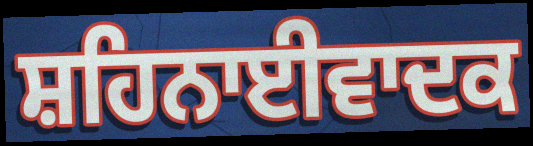
ਸ਼ਹਿਨਾਈਵਾਦਕ